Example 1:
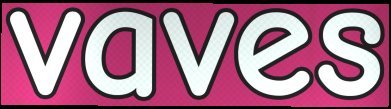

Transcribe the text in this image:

vaves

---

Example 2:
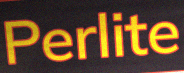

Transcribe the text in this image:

Perlite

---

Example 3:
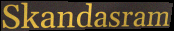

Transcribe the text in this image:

Skandasram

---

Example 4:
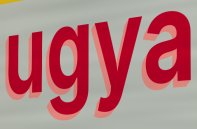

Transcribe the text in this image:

ugya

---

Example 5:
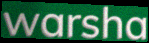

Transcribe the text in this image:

warsha